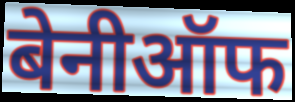
बेनीऑफ